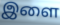
இளை